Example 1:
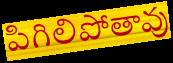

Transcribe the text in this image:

పిగిలిపోతావు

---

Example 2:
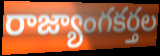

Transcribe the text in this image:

రాజ్యాంగకర్తల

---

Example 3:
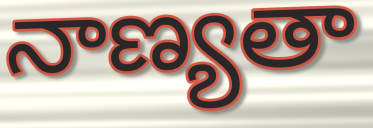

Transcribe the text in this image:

నాణ్యతా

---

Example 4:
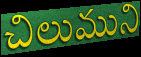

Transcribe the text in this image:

చిలుముని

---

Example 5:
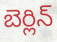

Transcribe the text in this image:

బెర్లిన్